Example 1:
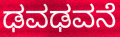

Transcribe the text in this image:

ಢವಢವನೆ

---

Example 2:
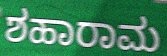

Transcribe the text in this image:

ಶಹಾರಾಮ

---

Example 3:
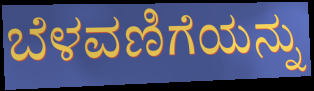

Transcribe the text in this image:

ಬೆಳವಣಿಗೆಯನ್ನು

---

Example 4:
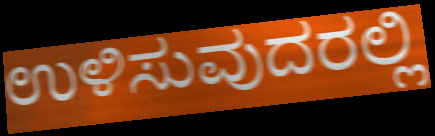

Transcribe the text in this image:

ಉಳಿಸುವುದರಲ್ಲಿ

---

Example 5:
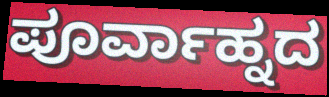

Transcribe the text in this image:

ಪೂರ್ವಾಹ್ನದ